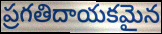
ప్రగతిదాయకమైన